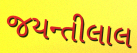
જયન્તીલાલ